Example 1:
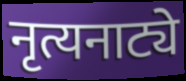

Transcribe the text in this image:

नृत्यनाट्ये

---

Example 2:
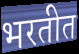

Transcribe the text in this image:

भरतीत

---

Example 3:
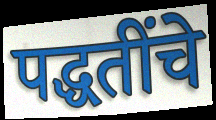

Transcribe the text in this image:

पद्धतींचे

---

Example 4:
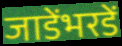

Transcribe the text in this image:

जाडेंभरडें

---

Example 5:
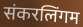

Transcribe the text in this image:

संकरलिंगम